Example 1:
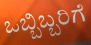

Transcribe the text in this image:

ಒಬ್ಬಿಬ್ಬರಿಗೆ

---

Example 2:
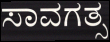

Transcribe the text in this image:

ಸಾವಗತ್ಸ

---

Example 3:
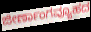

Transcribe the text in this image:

ಜೀರ್ಣಾಂಗವ್ಯೂಹದ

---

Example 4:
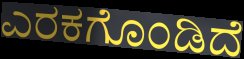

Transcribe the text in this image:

ಎರಕಗೊಂಡಿದೆ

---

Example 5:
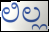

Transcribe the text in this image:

ಲಿಲ್ಲ